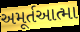
અમૂર્તઆત્મા